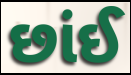
છાંઈ